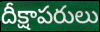
దీక్షాపరులు